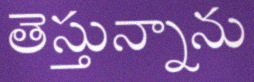
తెస్తున్నాను